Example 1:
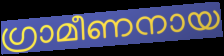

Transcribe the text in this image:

ഗ്രാമീണനായ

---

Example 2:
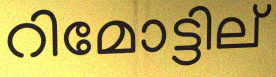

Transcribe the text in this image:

റിമോട്ടില്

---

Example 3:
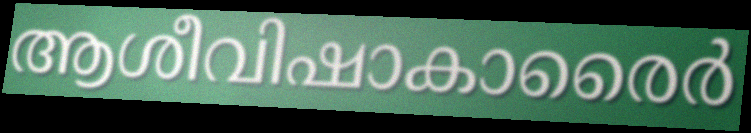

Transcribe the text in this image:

ആശീവിഷാകാരൈർ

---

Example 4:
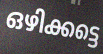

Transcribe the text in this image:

ഒഴിക്കട്ടെ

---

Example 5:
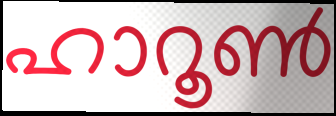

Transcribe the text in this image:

ഹാറൂൺ